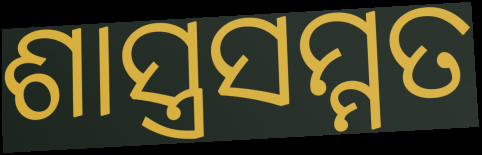
ଶାସ୍ତ୍ରସମ୍ମତ